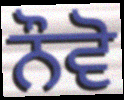
ਨੌਵੋ